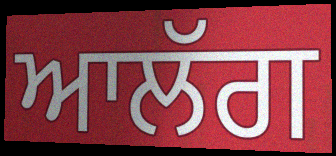
ਆਲੱਗ